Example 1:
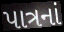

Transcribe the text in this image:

પાત્રનાં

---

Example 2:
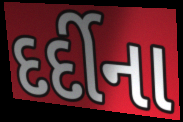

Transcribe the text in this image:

દર્દીના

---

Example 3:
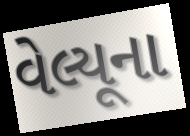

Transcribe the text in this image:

વેલ્યૂના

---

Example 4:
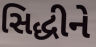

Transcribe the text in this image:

સિદ્ધીને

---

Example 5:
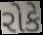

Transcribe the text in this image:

રોકે